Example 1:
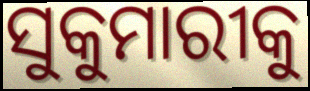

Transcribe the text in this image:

ସୁକୁମାରୀକୁ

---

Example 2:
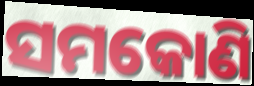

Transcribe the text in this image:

ସମକୋଣି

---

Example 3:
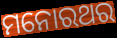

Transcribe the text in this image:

ମନୋରଥର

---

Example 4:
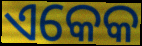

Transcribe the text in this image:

ଏକେକ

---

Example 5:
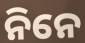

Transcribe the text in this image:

ନିନେ